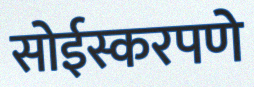
सोईस्करपणे